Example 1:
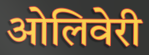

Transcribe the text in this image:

ओलिवेरी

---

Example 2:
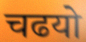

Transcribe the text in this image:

चढयो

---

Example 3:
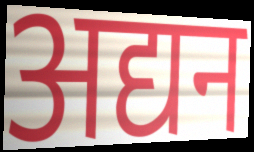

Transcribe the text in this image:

अद्यन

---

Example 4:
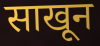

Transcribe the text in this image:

साखून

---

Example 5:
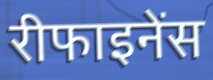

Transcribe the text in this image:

रीफाइनेंस